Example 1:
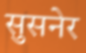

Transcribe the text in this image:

सुसनेर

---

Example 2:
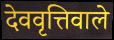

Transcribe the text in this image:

देववृत्तिवाले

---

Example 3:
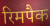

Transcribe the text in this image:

रिमपैक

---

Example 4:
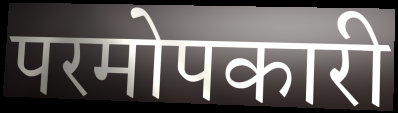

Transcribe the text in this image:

परमोपकारी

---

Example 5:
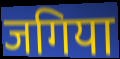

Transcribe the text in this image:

जगिया